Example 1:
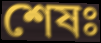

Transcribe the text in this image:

শেষঃ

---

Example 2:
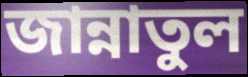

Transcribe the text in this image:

জান্নাতুল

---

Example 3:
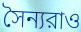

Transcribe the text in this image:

সৈন্যরাও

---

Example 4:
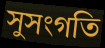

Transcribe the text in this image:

সুসংগতি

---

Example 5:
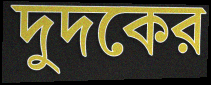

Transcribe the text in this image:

দুদকের